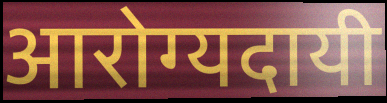
आरोग्यदायी